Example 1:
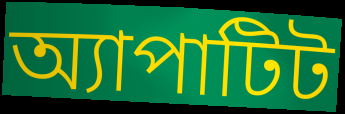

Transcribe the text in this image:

অ্যাপাটিট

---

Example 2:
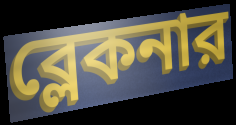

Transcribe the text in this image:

ব্লেকনার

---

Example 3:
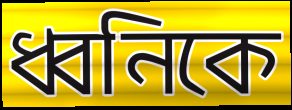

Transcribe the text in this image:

ধ্বনিকে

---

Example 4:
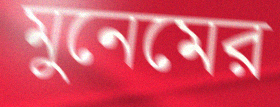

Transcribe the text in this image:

মুনেমের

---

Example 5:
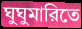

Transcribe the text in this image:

ঘুঘুমারিতে